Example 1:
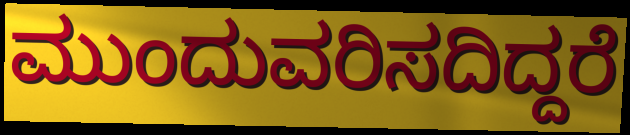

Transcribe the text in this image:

ಮುಂದುವರಿಸದಿದ್ದರೆ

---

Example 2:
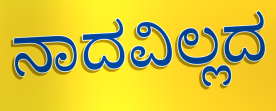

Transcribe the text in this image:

ನಾದವಿಲ್ಲದ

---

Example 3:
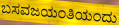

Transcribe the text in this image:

ಬಸವಜಯಂತಿಯಂದು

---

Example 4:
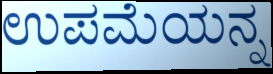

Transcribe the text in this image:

ಉಪಮೆಯನ್ನ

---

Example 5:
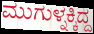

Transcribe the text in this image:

ಮುಗುಳ್ನಕ್ಕಿದ್ದ